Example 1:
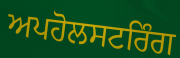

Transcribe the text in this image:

ਅਪਹੋਲਸਟਰਿੰਗ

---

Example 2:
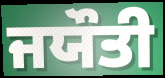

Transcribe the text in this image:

ਜਯੌਤੀ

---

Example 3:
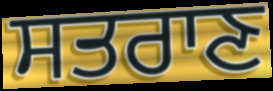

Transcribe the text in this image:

ਸਤਰਾਣ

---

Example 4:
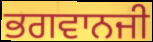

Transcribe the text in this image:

ਭਗਵਾਨਜੀ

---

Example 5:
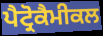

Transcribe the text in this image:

ਪੈਟ੍ਰੋਕੈਮੀਕਲ